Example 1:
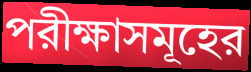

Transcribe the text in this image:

পরীক্ষাসমূহের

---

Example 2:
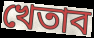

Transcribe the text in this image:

খেতাব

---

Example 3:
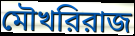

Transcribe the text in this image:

মৌখরিরাজ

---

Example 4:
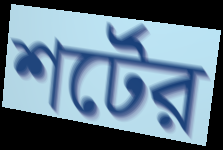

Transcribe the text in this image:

শর্টের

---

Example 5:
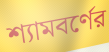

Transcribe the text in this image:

শ্যামবর্ণের